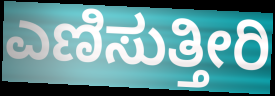
ಎಣಿಸುತ್ತೀರಿ